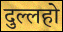
दुल्लहो